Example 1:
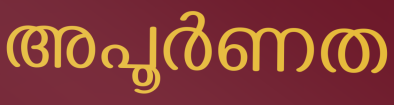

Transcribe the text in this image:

അപൂർണത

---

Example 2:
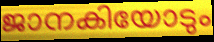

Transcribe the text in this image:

ജാനകിയോടും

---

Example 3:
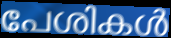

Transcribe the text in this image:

പേശികൾ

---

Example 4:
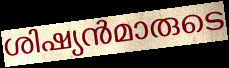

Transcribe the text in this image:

ശിഷ്യൻമാരുടെ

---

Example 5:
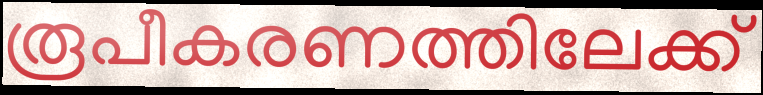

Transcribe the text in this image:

രൂപീകരണത്തിലേക്ക്